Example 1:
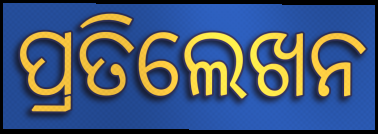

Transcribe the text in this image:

ପ୍ରତିଲେଖନ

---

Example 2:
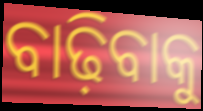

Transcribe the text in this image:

ବାଢ଼ିବାକୁ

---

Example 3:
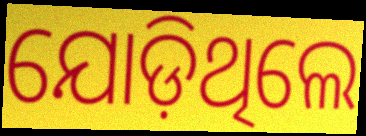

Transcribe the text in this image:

ଯୋଡ଼ିଥିଲେ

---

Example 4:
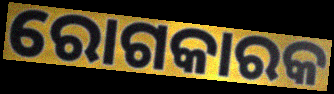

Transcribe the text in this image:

ରୋଗକାରକ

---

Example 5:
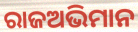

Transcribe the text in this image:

ରାଜଅଭିମାନ